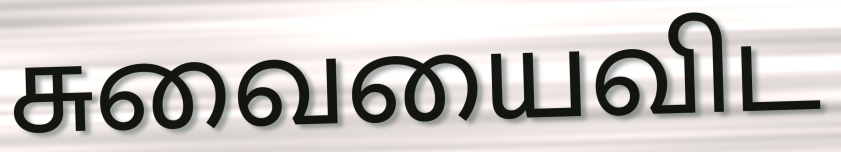
சுவையைவிட